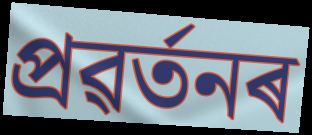
প্ৰৱৰ্তনৰ